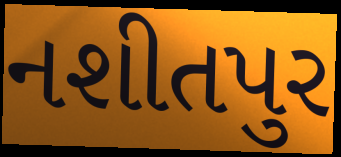
નશીતપુર